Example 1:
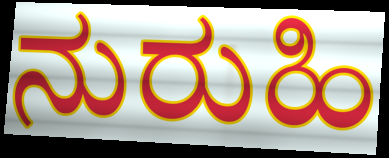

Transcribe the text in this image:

ನುರುಹಿ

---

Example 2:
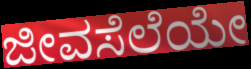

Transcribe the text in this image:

ಜೀವಸೆಲೆಯೇ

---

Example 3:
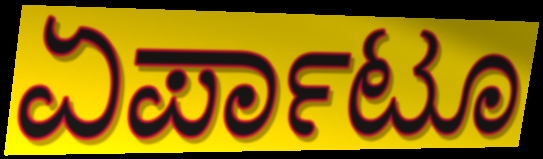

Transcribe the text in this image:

ಏರ್ಪಾಟೂ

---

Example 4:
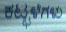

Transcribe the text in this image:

ಕಟ್ಟಳೆಗಳು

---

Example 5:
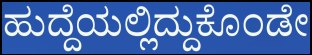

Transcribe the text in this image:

ಹುದ್ದೆಯಲ್ಲಿದ್ದುಕೊಂಡೇ